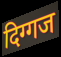
दिग्गज